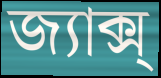
জ্যাক্স্